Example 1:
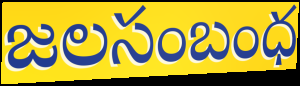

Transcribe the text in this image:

జలసంబంధ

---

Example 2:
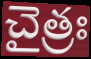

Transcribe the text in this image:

చైత్రః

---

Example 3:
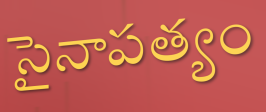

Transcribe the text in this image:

సైనాపత్యం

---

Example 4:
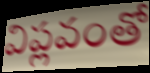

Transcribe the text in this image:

విప్లవంతో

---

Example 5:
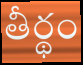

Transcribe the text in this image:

తీర్థం